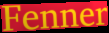
Fenner